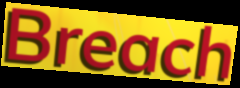
Breach